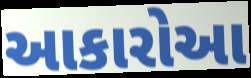
આકારોઆ